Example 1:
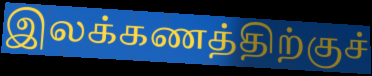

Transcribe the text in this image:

இலக்கணத்திற்குச்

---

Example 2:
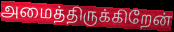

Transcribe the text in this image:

அமைத்திருக்கிறேன்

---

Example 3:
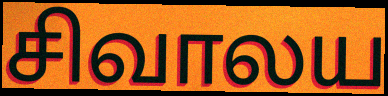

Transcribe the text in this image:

சிவாலய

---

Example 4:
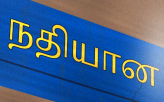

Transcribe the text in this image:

நதியான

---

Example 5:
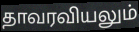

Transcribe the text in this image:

தாவரவியலும்